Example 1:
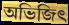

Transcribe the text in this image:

অভিজিৎ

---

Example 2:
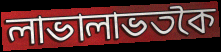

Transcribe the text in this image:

লাভালাভতকৈ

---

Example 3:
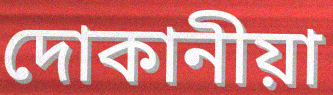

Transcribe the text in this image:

দোকানীয়া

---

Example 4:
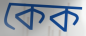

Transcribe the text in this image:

কেক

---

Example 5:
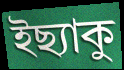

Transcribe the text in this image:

ইছ্যাকু